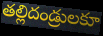
తల్లిదండ్రులకూ